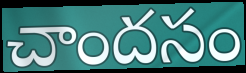
చాందసం